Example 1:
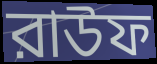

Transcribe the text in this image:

রাউফ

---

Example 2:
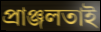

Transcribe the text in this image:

প্রাঞ্জলতাই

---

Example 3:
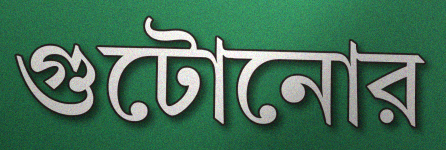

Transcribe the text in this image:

গুটোনোর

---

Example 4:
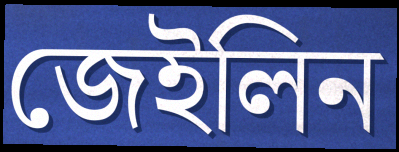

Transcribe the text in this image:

জেইলিন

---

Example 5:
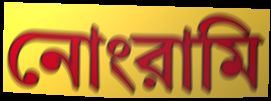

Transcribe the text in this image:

নোংরামি